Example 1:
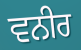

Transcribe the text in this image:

ਵਨੀਰ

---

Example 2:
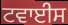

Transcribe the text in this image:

ਟਵਾਈਸ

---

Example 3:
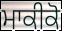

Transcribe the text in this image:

ਮਾਕੀਕੋ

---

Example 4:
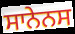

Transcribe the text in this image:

ਸਾਨੇਨਸ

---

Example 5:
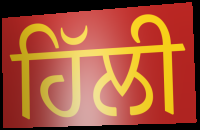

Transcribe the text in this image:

ਹਿੱਲੀ